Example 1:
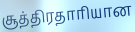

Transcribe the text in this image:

சூத்திரதாரியான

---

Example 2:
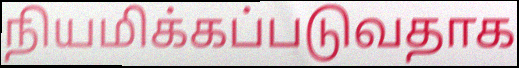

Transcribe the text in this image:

நியமிக்கப்படுவதாக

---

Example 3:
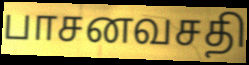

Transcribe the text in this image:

பாசனவசதி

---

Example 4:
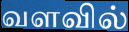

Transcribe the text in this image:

வளவில்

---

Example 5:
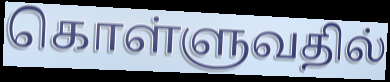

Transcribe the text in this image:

கொள்ளுவதில்